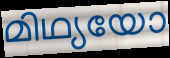
മിഥ്യയോ